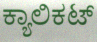
ಕ್ಯಾಲಿಕಟ್